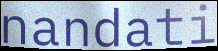
nandati